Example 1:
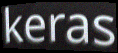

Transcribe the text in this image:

keras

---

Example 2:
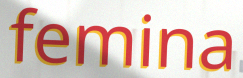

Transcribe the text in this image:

femina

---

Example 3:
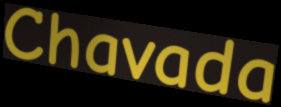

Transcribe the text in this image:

Chavada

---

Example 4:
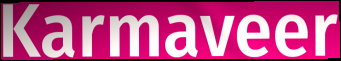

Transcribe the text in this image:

Karmaveer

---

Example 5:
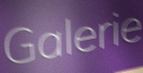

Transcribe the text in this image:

Galerie